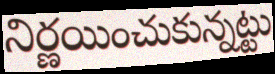
నిర్ణయించుకున్నట్టు